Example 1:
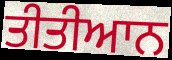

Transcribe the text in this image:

ਤੀਤੀਆਨ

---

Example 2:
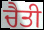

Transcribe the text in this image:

ਚੈਤੀ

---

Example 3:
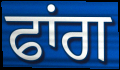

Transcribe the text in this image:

ਫਾਂਗ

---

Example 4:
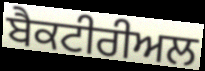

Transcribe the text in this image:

ਬੈਕਟੀਰੀਅਲ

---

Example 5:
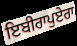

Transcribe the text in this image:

ਇਬੀਰਾਪੁਏਰਾ